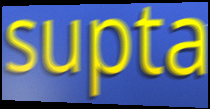
supta